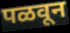
पळवून